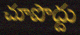
చూపొద్దు